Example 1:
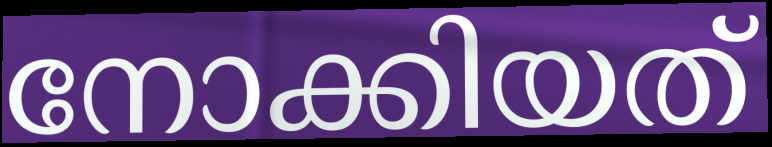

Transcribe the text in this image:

നോക്കിയത്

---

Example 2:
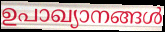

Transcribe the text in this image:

ഉപാഖ്യാനങ്ങൾ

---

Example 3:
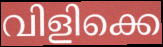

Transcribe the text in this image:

വിളിക്കെ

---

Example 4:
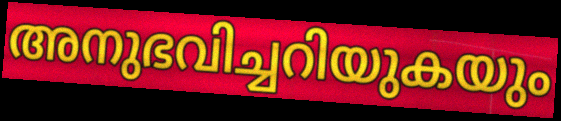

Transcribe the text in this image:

അനുഭവിച്ചറിയുകയും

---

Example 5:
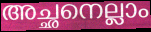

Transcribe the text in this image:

അച്ഛനെല്ലാം